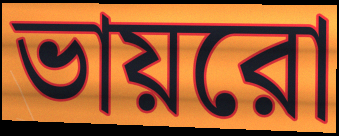
ভায়রো